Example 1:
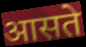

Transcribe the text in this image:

आसते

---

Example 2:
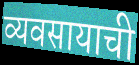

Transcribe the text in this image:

व्यवसायाची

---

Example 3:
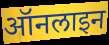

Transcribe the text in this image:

ऑनलाइन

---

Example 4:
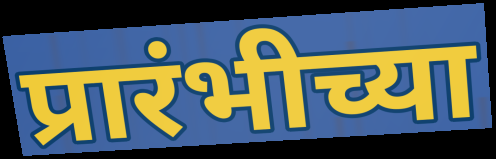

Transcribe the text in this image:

प्रारंभीच्या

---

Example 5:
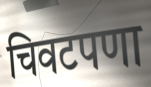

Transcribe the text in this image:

चिवटपणा